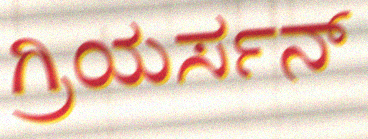
ಗ್ರಿಯರ್ಸನ್